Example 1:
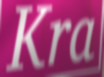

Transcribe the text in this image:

Kra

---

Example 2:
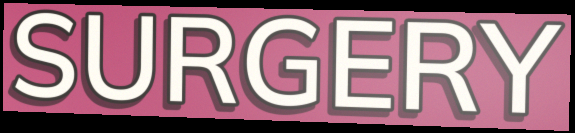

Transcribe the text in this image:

SURGERY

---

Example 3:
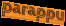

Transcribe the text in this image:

parappu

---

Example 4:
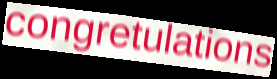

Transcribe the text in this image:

congretulations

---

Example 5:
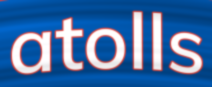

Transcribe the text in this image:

atolls